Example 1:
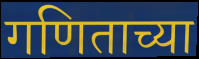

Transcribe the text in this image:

गणिताच्या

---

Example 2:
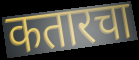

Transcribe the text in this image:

कतारचा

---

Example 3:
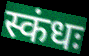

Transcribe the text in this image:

स्कंधः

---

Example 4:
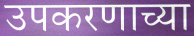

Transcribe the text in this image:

उपकरणाच्या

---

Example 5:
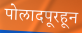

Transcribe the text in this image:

पोलादपूरहून